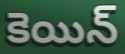
కెయిన్